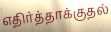
எதிர்த்தாக்குதல்